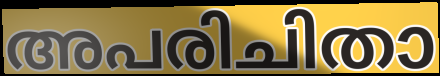
അപരിചിതാ